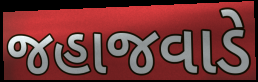
જહાજવાડે